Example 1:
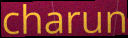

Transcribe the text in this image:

charun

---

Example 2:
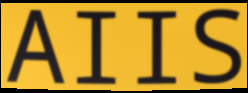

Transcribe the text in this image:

AIIS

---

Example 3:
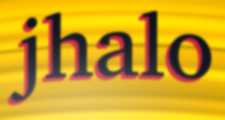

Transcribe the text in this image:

jhalo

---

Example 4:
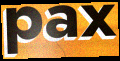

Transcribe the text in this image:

pax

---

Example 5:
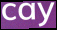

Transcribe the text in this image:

cay